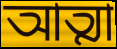
আত্মা